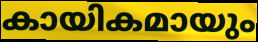
കായികമായും